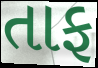
તાફ